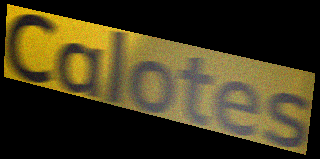
Calotes